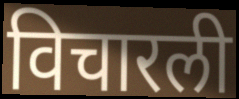
विचारली